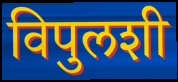
विपुलशी